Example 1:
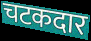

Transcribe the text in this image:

चटकदार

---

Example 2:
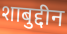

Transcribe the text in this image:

शाबुद्दीन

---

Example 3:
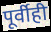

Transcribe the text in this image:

पूर्वीही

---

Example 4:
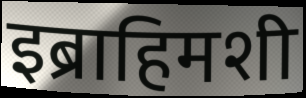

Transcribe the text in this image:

इब्राहिमशी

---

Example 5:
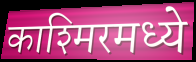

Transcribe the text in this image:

काश्मिरमध्ये